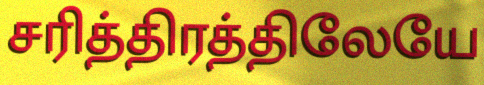
சரித்திரத்திலேயே